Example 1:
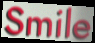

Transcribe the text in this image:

Smile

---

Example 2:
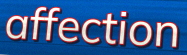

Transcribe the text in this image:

affection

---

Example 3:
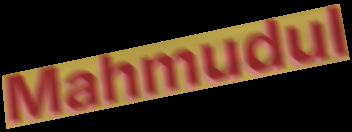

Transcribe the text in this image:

Mahmudul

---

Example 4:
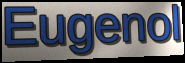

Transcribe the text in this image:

Eugenol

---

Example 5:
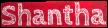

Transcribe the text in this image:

Shantha